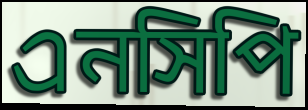
এনসিপি